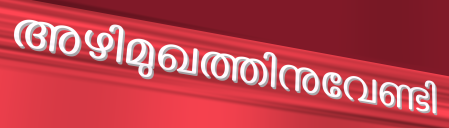
അഴിമുഖത്തിനുവേണ്ടി